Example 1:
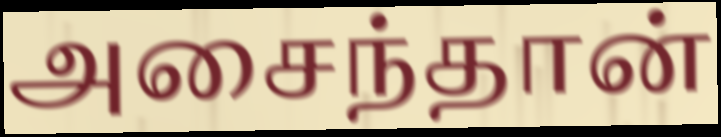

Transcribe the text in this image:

அசைந்தான்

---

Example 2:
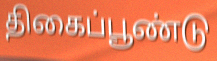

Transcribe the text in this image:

திகைப்பூண்டு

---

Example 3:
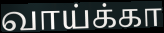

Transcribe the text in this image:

வாய்க்கா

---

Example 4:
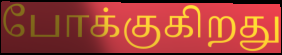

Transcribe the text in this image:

போக்குகிறது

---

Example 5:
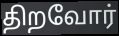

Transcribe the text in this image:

திறவோர்